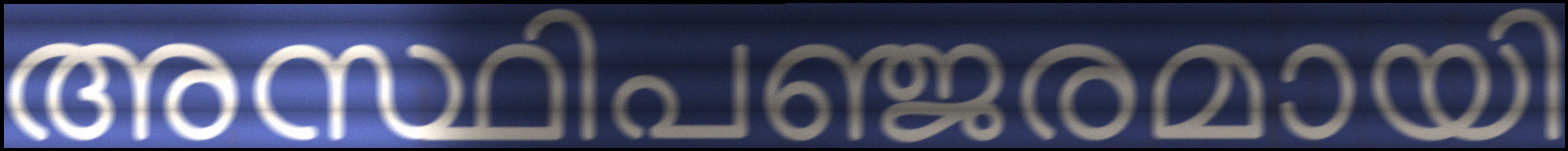
അസ്ഥിപഞ്ജരമായി